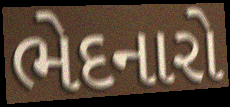
ભેદનારો